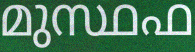
മുസ്ഥഫ